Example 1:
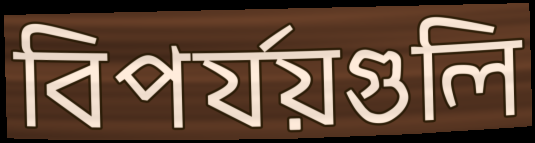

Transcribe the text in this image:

বিপর্যয়গুলি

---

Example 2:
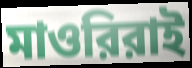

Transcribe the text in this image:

মাওরিরাই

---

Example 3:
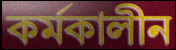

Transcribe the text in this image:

কর্মকালীন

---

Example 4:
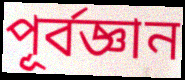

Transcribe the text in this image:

পূর্বজ্ঞান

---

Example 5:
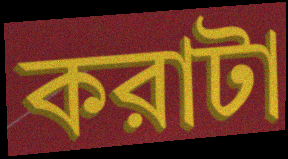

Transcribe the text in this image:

করাটা